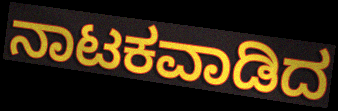
ನಾಟಕವಾಡಿದ